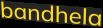
bandhela